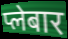
प्लेबार